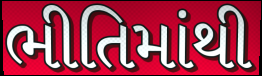
ભીતિમાંથી